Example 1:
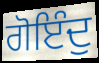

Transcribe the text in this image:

ਗੋਇੰਦੁ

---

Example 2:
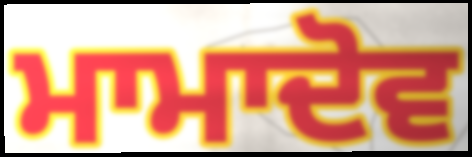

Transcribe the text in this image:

ਮਾਮਾਦੋਵ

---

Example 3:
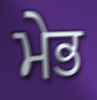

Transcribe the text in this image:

ਮੇਭ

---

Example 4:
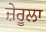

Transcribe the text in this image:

ਜ਼ੇਰੂਲਾ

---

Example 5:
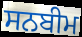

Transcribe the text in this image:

ਸਨਬੀਮ